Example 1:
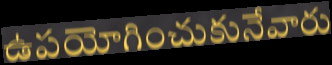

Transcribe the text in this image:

ఉపయోగించుకునేవారు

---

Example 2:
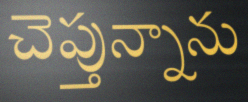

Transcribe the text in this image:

చెప్తున్నాను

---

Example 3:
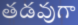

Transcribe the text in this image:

తడవుగా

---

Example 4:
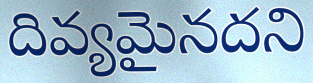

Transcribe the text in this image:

దివ్యమైనదని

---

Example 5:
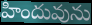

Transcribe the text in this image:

హిందువును